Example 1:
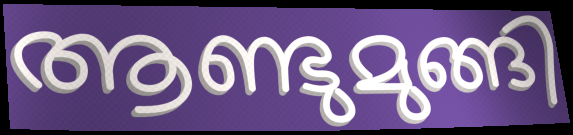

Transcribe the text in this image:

ആണ്ടുമുങ്ങി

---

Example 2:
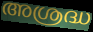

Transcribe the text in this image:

അശ്രദ്ധ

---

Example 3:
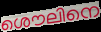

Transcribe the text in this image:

ശൌലിനെ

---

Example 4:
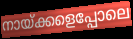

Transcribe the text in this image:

നായ്ക്കളെപ്പോലെ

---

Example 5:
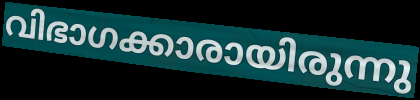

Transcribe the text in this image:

വിഭാഗക്കാരായിരുന്നു